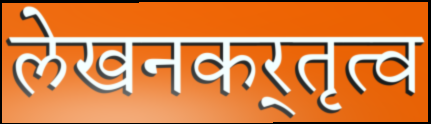
लेखनकर्तृत्व